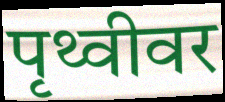
पृथ्वीवर